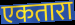
एकतारा